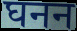
घनन